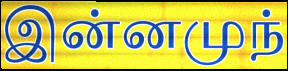
இன்னமுந்